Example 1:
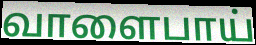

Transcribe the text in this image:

வாளைபாய்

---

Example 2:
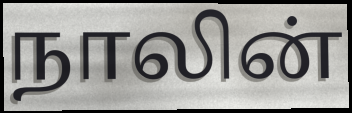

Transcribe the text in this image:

நாலின்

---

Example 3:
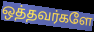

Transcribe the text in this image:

ஒத்தவர்களே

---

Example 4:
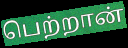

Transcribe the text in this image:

பெற்றான்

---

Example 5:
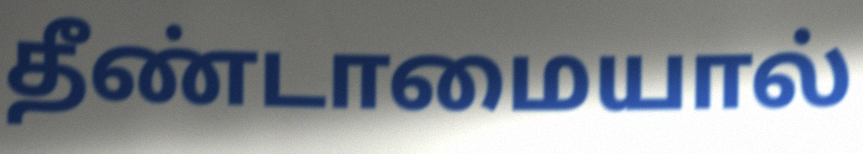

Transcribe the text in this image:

தீண்டாமையால்